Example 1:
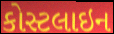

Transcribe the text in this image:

કોસ્ટલાઇન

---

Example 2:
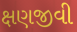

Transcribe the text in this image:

ક્ષણજીવી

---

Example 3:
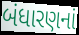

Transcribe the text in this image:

બંધારણનાં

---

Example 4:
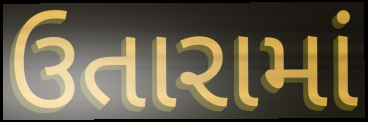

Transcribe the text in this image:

ઉતારામાં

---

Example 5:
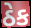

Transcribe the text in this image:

ઠેક